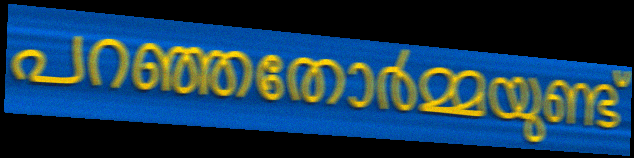
പറഞ്ഞതോർമ്മയുണ്ട്